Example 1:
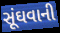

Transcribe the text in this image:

સૂંઘવાની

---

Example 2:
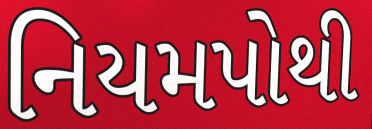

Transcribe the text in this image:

નિયમપોથી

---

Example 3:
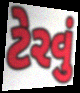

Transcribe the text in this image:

ટેરવું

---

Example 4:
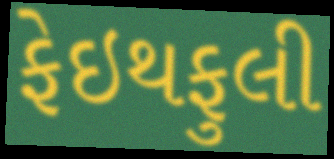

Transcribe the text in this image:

ફેઇથફુલી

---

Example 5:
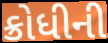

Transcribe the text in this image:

ક્રોધીની